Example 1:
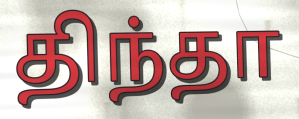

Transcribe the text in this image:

திந்தா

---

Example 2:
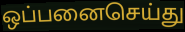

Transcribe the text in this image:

ஒப்பனைசெய்து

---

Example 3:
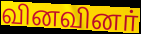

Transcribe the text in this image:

வினவினர்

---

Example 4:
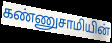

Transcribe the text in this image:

கண்ணுசாமியின்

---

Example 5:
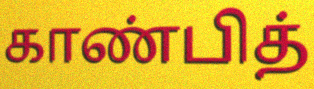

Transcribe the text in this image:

காண்பித்